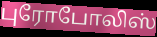
புரோபோலிஸ்